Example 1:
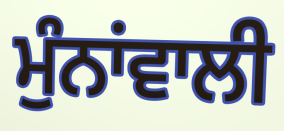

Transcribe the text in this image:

ਮੁੰਨਾਂਵਾਲੀ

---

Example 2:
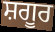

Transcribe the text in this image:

ਸ਼ਗੂਰ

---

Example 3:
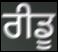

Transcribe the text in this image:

ਰੀਡੂ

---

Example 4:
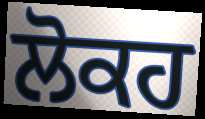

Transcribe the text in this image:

ਲੋਕਹ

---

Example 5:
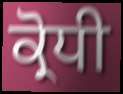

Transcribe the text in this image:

ਕ੍ਰੋਧੀ